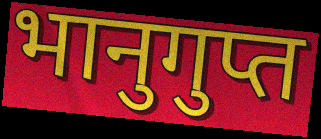
भानुगुप्त